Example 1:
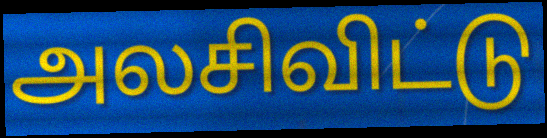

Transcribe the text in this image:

அலசிவிட்டு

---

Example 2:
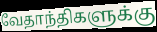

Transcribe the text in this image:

வேதாந்திகளுக்கு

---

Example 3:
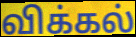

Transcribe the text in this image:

விக்கல்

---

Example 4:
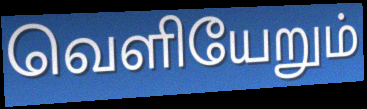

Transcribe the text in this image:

வெளியேறும்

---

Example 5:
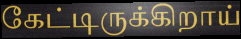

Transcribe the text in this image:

கேட்டிருக்கிறாய்